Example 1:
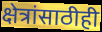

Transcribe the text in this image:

क्षेत्रांसाठीही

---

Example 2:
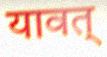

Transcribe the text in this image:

यावत्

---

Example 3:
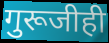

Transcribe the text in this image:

गुरूजीही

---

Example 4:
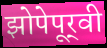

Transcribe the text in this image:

झोपेपूर्वी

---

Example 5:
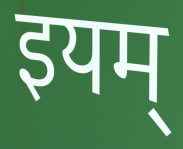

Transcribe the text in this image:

इयम्